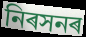
নিৰসনৰ